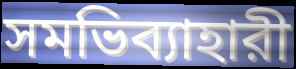
সমভিব্যাহারী